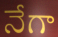
నేగా